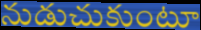
నుడుచుకుంటూ